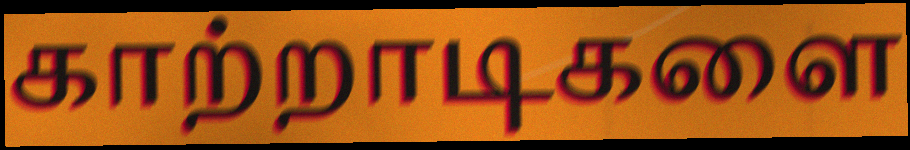
காற்றாடிகளை